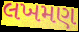
લખમણ